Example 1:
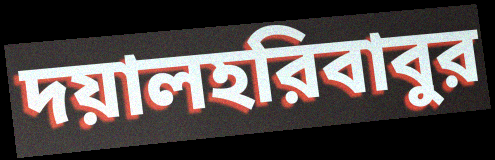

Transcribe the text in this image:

দয়ালহরিবাবুর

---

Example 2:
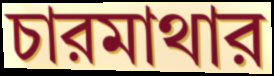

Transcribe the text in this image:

চারমাথার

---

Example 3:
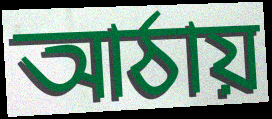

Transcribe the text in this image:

আঠায়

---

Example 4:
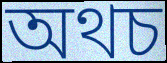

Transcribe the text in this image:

অথচ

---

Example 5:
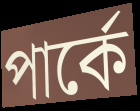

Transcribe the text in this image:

পার্কে